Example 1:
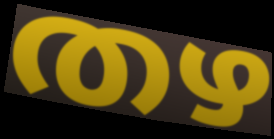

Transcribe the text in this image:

തഴ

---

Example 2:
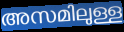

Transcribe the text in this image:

അസമിലുള്ള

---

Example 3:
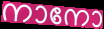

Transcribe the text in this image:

നാനോ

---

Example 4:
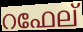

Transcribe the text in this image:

റഫേല്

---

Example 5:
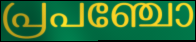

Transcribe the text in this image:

പ്രപഞ്ചോ